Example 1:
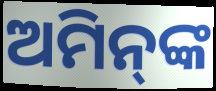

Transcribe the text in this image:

ଅମିନ୍‌ଙ୍କ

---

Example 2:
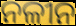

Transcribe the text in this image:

ନଳୀନ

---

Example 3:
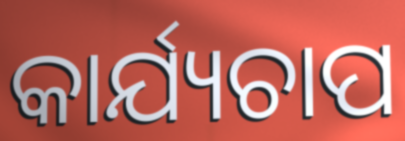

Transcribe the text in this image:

କାର୍ଯ୍ୟଚାପ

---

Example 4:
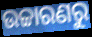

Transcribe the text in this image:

ଉଚ୍ଚାରଣରୁ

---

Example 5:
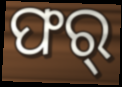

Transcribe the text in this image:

ଫର୍